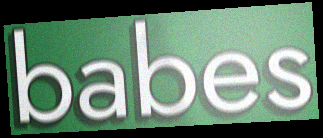
babes